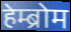
हेम्ब्रोम